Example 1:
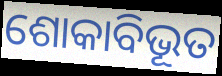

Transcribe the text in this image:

ଶୋକାବିଭୂତ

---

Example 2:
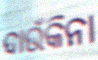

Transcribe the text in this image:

ଦାଉଁକିନା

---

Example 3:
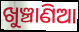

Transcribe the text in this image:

ଖୁଞ୍ଚାଣିଆ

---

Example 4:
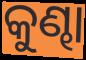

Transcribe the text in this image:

କୁଣ୍ଢା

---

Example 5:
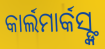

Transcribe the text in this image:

କାର୍ଲମାର୍କସ୍ଙ୍କ